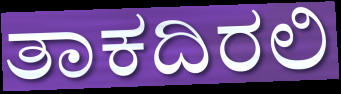
ತಾಕದಿರಲಿ